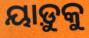
ୟାଡ଼ୁକୁ